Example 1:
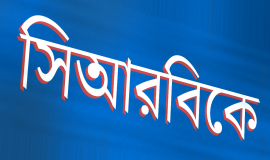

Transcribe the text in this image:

সিআরবিকে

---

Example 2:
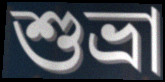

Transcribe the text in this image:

শুভ্রা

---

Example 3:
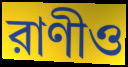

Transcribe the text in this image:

রাণীও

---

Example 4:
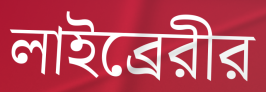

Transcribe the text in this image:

লাইব্রেরীর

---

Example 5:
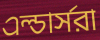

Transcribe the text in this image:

এল্ডার্সরা